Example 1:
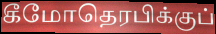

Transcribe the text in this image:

கீமோதெரபிக்குப்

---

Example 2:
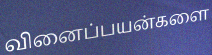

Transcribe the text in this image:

வினைப்பயன்களை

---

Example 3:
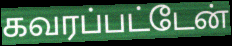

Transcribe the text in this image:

கவரப்பட்டேன்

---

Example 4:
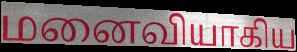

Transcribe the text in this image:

மனைவியாகிய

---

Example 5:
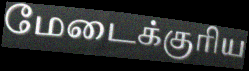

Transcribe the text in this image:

மேடைக்குரிய